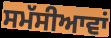
ਸਮੱਸੀਆਵਾਂ